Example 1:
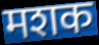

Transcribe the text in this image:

मशक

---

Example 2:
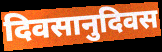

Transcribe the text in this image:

दिवसानुदिवस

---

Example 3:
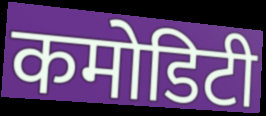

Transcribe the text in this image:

कमोडिटी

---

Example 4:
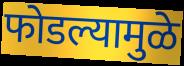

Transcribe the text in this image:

फोडल्यामुळे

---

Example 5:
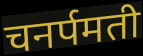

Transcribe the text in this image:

चनर्पमती